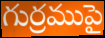
గుర్రముపై